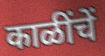
काळींचें